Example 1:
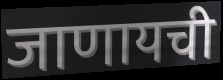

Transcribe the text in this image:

जाणायची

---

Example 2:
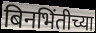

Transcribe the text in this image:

बिनभिंतीच्या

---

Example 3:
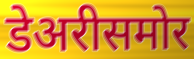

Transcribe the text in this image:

डेअरीसमोर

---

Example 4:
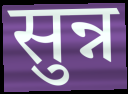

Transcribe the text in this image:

सुन्न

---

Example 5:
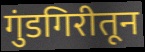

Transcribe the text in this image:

गुंडगिरीतून